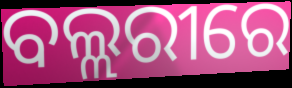
ବଲ୍ଲରୀରେ